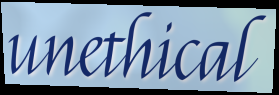
unethical